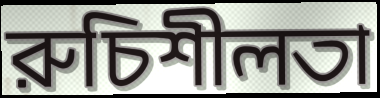
রুচিশীলতা